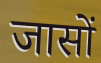
जासों